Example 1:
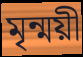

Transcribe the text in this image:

মৃন্ময়ী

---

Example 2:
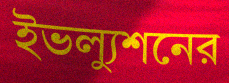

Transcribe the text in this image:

ইভল্যুশনের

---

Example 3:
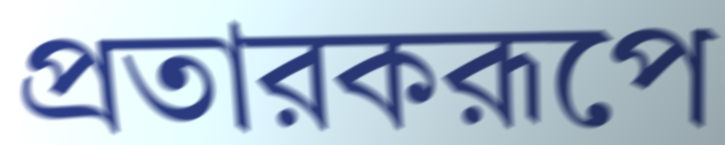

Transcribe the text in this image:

প্রতারকরূপে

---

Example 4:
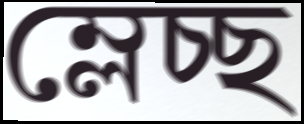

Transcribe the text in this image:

ম্লেচ্ছ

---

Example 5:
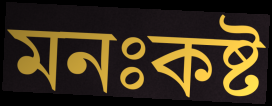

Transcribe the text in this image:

মনঃকষ্ট